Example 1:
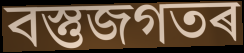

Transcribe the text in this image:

বস্তুজগতৰ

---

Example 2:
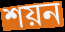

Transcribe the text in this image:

শয়ন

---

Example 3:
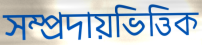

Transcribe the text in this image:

সম্প্ৰদায়ভিত্তিক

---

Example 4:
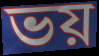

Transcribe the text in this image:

ভয়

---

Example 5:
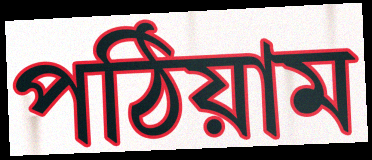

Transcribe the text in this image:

পঠিয়াম